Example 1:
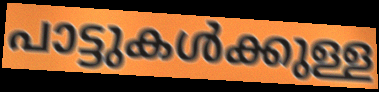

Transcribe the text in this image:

പാട്ടുകൾക്കുള്ള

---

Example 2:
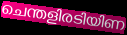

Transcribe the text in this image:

ചെന്തളിരടിയിണ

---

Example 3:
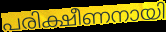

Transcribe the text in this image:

പരിക്ഷീണനായി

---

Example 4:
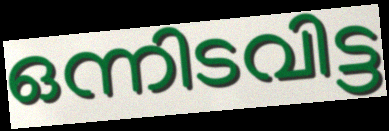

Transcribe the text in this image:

ഒന്നിടവിട്ട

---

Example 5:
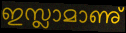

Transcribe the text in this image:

ഇസ്ലാമാണു്